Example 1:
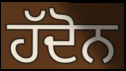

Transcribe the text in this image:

ਹੱਦੋਨ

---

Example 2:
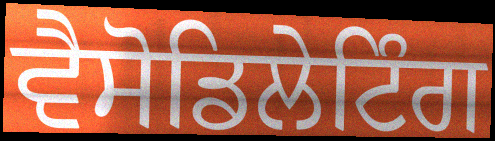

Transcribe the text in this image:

ਵੈਸੋਡਿਲੇਟਿੰਗ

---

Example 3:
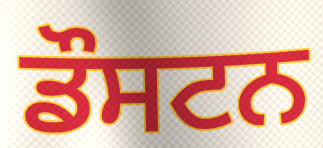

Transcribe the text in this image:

ਡੌਸਟਨ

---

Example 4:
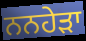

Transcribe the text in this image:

ਨਨਹੇੜਾ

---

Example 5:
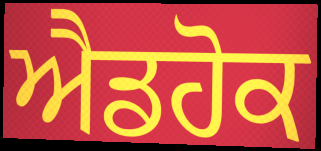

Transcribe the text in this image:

ਐਡਹੋਕ